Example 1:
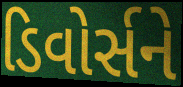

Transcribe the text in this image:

ડિવોર્સને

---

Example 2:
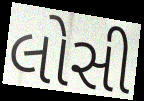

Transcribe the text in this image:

લોસી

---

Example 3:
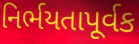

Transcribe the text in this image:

નિર્ભયતાપૂર્વક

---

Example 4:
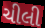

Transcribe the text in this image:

ચીલી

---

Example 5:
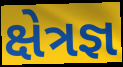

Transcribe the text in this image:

ક્ષેત્રજ્ઞ